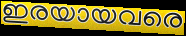
ഇരയായവരെ